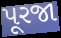
પૂરજા